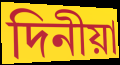
দিনীয়া